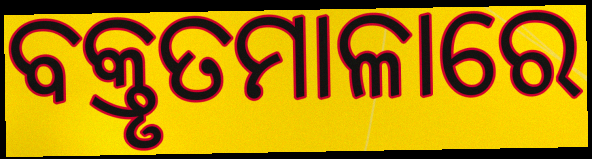
ବକ୍ତୃତମାଳାରେ